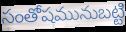
సంతోషమునుబట్టి